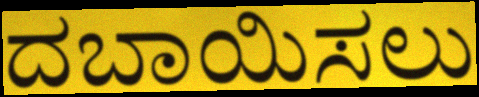
ದಬಾಯಿಸಲು